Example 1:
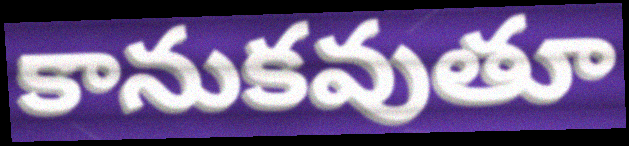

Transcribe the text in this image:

కానుకవుతూ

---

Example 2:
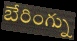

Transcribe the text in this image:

బేరింగ్ను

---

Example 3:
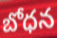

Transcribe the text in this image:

బోధన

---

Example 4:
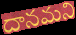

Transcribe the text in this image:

దానమని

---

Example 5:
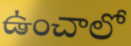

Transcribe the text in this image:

ఉంచాలో